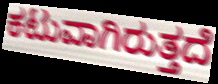
ಕಟುವಾಗಿರುತ್ತದೆ